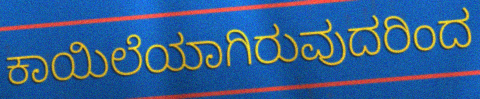
ಕಾಯಿಲೆಯಾಗಿರುವುದರಿಂದ